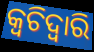
କ୍ଵଚିଦ୍ୱାରି